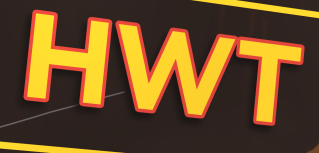
HWT